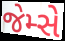
જેમ્સે